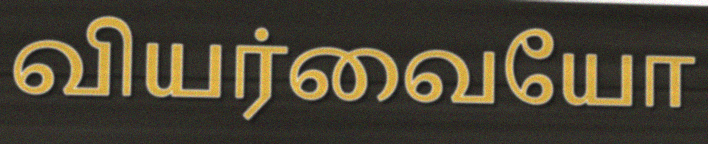
வியர்வையோ